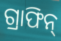
ଗ୍ରାଫିନ୍